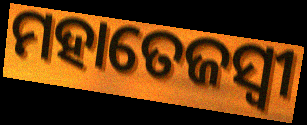
ମହାତେଜସ୍ୱୀ